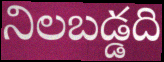
నిలబడ్డది